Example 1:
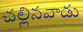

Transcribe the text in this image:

చల్లినవాడు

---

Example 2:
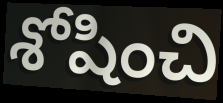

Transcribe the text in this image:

శోషించి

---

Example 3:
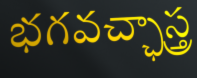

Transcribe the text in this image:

భగవచ్ఛాస్త్ర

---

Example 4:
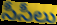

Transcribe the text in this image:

సీసీలు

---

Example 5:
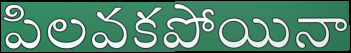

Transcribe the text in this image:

పిలవకపోయినా